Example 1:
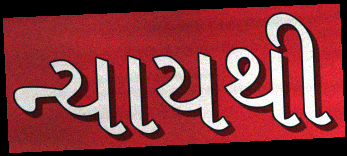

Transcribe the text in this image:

ન્યાયથી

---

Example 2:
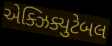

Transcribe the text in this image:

એક્ઝિક્યુટેબલ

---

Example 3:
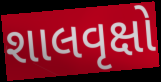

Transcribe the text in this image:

શાલવૃક્ષો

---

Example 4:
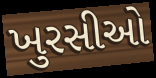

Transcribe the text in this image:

ખુરસીઓ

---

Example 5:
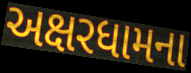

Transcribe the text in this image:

અક્ષરધામના